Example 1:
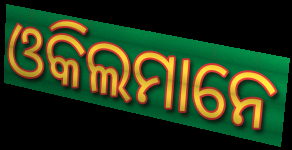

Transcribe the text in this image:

ଓକିଲମାନେ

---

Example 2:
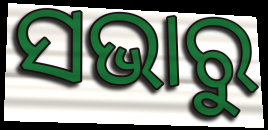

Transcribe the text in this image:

ସଭାରୁ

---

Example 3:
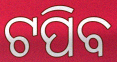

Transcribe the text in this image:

ଟପିବ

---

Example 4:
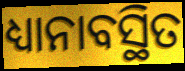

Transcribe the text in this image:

ଧ୍ୟାନାବସ୍ଥିତ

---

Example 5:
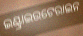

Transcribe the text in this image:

ଇଣ୍ଟ୍ରାଇଉଟେରାଇନ